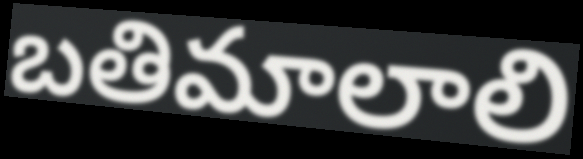
బతిమాలాలి